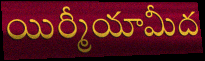
యిర్మీయామీద